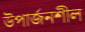
উপার্জনশীল